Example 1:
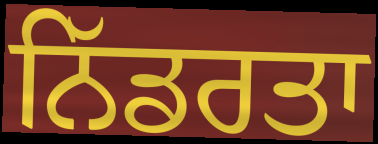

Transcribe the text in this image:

ਨਿੱਡਰਤਾ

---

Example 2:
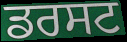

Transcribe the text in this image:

ਡਰਸਟ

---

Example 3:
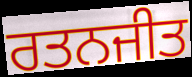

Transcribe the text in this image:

ਰਤਨਜੀਤ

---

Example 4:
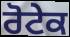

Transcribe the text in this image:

ਰੋਟੇਕ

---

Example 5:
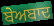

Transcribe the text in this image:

ਬੇਅਬਾਦ